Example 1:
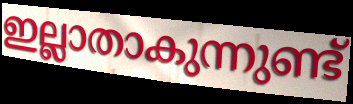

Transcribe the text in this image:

ഇല്ലാതാകുന്നുണ്ട്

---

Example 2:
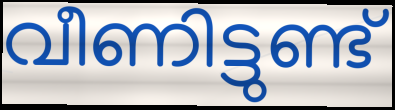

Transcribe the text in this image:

വീണിട്ടുണ്ട്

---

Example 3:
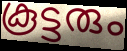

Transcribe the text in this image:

കൂട്ടരും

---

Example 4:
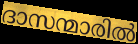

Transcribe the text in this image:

ദാസന്മാരിൽ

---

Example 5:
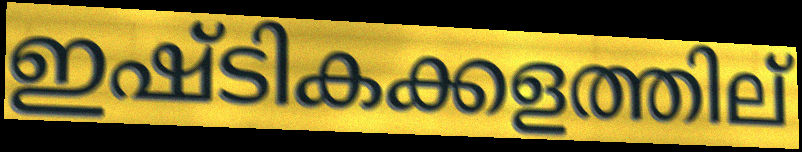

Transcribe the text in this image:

ഇഷ്ടികക്കളത്തില്